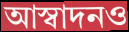
আস্বাদনও